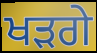
ਖੜਗੇ